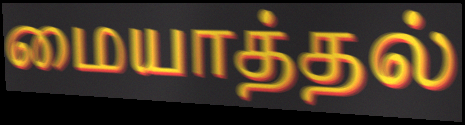
மையாத்தல்